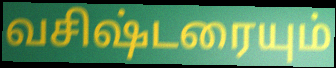
வசிஷ்டரையும்